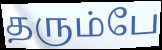
தரும்பே